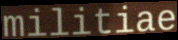
militiae